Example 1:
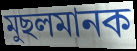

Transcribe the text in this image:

মুছলমানক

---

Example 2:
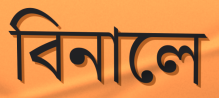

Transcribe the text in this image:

বিনালে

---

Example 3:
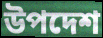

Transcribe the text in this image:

উপদেশ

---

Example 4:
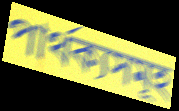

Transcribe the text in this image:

পাৰ্থক্যসমূহ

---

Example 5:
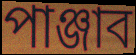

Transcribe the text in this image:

পাঞ্জাব